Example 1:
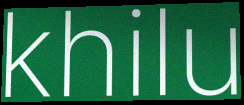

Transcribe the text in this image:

khilu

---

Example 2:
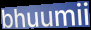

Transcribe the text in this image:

bhuumii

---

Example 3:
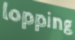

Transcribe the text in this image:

lopping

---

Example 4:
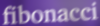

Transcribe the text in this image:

fibonacci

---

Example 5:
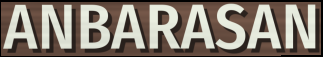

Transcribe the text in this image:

ANBARASAN